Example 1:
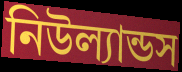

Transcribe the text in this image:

নিউল্যান্ডস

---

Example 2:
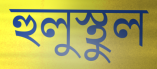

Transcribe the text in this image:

হুলুস্থুল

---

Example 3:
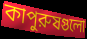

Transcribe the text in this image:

কাপুরুষগুলো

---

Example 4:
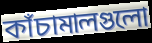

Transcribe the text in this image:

কাঁচামালগুলো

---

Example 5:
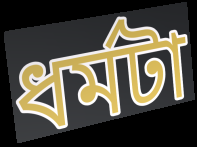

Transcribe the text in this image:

ধর্মটা